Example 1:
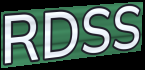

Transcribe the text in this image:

RDSS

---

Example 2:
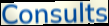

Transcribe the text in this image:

Consults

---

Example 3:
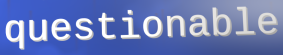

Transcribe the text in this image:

questionable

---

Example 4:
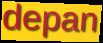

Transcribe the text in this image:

depan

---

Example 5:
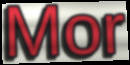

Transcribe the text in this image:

Mor